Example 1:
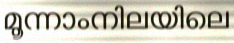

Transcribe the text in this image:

മൂന്നാംനിലയിലെ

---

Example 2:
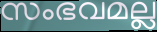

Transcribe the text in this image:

സംഭവമല്ല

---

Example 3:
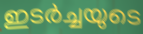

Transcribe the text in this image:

ഇടർച്ചയുടെ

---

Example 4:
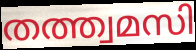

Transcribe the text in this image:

തത്ത്വമസി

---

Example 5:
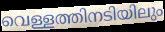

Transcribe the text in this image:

വെള്ളത്തിനടിയിലും